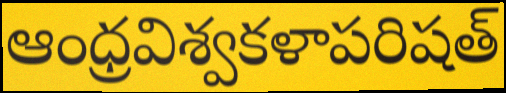
ఆంధ్రవిశ్వకళాపరిషత్